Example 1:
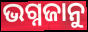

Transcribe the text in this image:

ଭଗ୍ନଜାନୁ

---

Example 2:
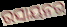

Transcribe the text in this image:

ରସାୟନର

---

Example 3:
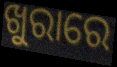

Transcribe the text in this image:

ଖୁରାରେ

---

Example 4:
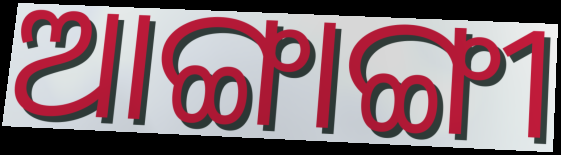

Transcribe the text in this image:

ଆଙ୍ଗାଙ୍ଗୀ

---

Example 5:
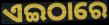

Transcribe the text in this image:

ଏଇଠାରେ